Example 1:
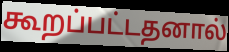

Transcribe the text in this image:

கூறப்பட்டதனால்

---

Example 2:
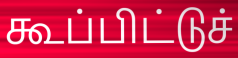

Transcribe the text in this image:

கூப்பிட்டுச்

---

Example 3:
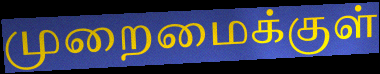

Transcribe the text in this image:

முறைமைக்குள்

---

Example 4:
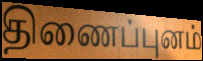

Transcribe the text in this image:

திணைப்புனம்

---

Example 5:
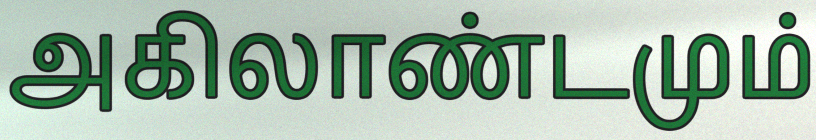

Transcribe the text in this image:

அகிலாண்டமும்